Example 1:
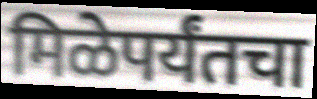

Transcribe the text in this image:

मिळेपर्यंतचा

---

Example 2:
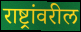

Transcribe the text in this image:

राष्ट्रांवरील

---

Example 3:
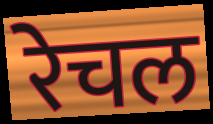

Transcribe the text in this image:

रेचल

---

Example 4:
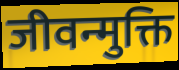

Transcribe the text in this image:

जीवन्मुक्ति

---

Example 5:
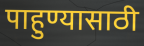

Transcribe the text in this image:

पाहुण्यासाठी